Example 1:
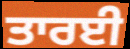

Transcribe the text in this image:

ਤਾਰਈ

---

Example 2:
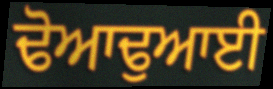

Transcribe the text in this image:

ਢੋਆਢੁਆਈ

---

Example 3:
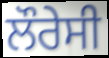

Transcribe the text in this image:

ਲੌਰੇਸੀ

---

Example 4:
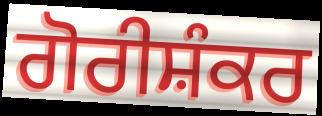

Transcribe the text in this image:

ਗੋਰੀਸ਼ੰਕਰ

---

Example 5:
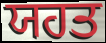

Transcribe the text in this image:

ਯਹਤ